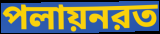
পলায়নরত